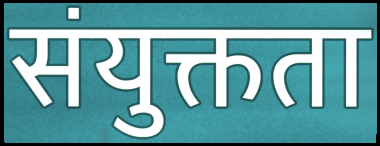
संयुक्तता